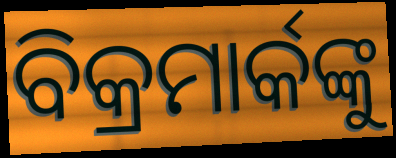
ବିକ୍ରମାର୍କଙ୍କୁ